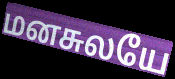
மனசுலயே